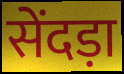
सेंदड़ा